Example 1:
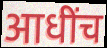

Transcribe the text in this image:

आधींच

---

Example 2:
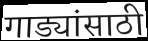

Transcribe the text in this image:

गाड्यांसाठी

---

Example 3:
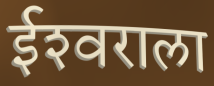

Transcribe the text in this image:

ईश्वराला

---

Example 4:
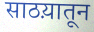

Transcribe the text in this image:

साठय़ातून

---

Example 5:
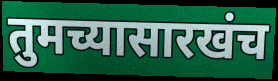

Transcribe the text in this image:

तुमच्यासारखंच